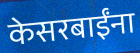
केसरबाईंना